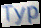
Typ